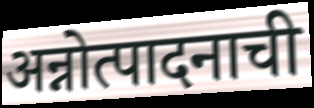
अन्नोत्पादनाची